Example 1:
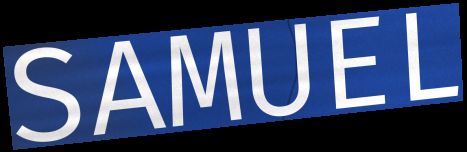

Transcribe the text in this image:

SAMUEL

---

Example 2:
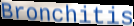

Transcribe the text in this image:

Bronchitis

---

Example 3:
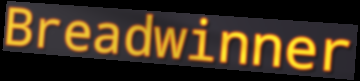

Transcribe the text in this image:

Breadwinner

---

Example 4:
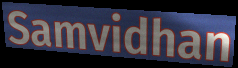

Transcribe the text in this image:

Samvidhan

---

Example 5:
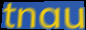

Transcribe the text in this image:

tnau